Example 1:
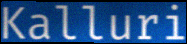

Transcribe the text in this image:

Kalluri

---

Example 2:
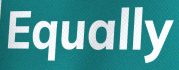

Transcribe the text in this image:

Equally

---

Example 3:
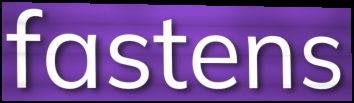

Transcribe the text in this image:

fastens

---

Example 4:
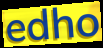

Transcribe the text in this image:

edho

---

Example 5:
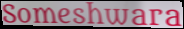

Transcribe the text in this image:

Someshwara